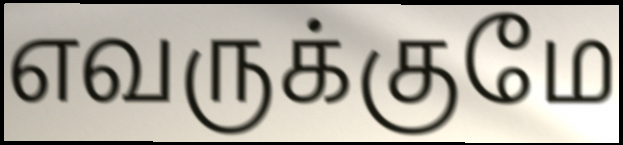
எவருக்குமே